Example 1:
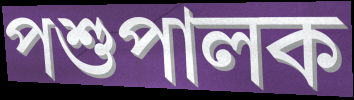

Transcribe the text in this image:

পশুপালক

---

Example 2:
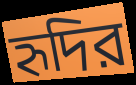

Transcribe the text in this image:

হৃদির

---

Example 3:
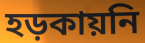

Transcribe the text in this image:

হড়কায়নি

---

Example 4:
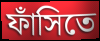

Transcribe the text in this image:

ফাঁসিতে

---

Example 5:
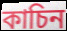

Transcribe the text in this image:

কাচিন